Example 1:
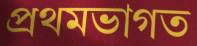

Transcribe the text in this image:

প্ৰথমভাগত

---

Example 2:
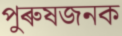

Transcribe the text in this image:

পুৰুষজনক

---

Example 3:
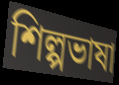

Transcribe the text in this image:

শিল্পভাষা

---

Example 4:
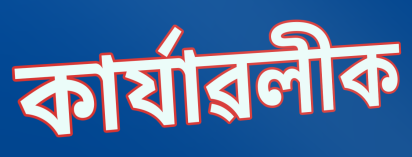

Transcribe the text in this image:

কাৰ্যাৱলীক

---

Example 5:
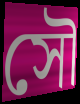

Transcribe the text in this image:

সৌ